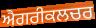
ਐਗਰੀਕਲਚਰ